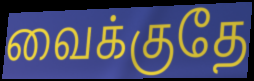
வைக்குதே